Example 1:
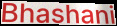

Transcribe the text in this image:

Bhashani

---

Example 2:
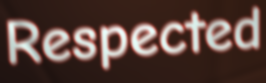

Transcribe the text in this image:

Respected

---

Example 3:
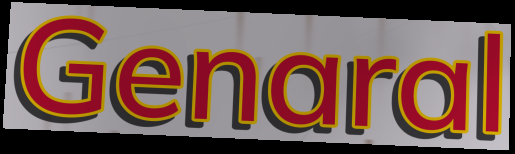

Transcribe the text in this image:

Genaral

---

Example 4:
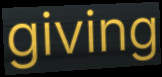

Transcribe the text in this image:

giving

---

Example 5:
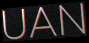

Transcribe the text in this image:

UAN